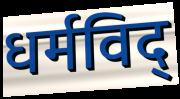
धर्मविद्